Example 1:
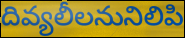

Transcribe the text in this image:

దివ్యలీలనునిలిపి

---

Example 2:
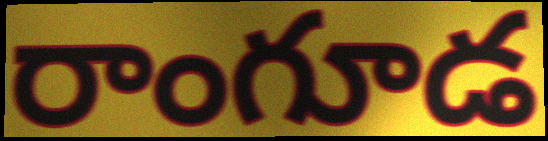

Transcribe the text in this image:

రాంగూడ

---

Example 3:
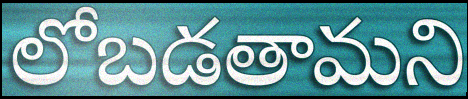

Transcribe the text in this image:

లోబడతామని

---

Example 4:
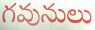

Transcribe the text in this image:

గవునులు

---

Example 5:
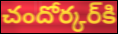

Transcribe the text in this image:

చందోర్కర్‌కి